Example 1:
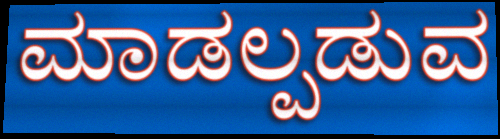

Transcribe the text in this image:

ಮಾಡಲ್ಪಡುವ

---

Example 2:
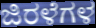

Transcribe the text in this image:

ಜಿರಳೆಗಳ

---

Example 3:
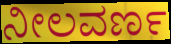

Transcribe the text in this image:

ನೀಲವರ್ಣ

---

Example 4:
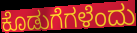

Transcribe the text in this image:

ಕೊಡುಗೆಗಳೆಂದು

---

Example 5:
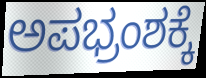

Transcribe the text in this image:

ಅಪಭ್ರಂಶಕ್ಕೆ